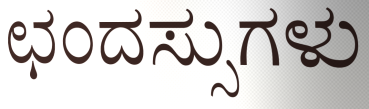
ಛಂದಸ್ಸುಗಳು